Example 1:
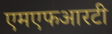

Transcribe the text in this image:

एमएफआरटी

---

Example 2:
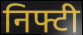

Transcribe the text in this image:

निफ्टी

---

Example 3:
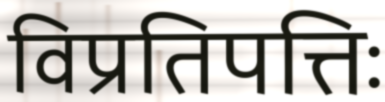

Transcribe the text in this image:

विप्रतिपत्तिः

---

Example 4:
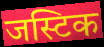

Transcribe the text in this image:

जस्टिक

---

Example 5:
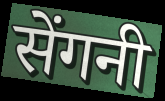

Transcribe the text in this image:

सेंगनी